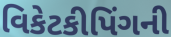
વિકેટકીપિંગની